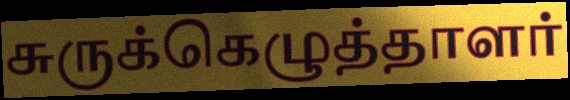
சுருக்கெழுத்தாளர்